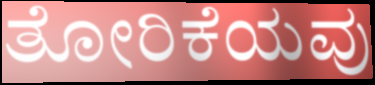
ತೋರಿಕೆಯವು